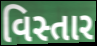
વિસ્તાર